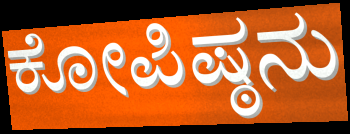
ಕೋಪಿಷ್ಠನು